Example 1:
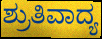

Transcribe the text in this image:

ಶ್ರುತಿವಾದ್ಯ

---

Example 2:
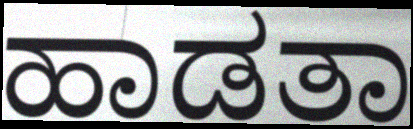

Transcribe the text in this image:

ಹಾಡತಾ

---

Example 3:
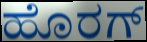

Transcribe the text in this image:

ಹೊರಗ್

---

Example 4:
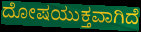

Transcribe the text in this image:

ದೋಷಯುಕ್ತವಾಗಿದೆ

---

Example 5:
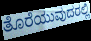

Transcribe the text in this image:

ತೊರೆಯುವುದರಲ್ಲಿ